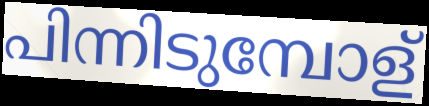
പിന്നിടുമ്പോള്